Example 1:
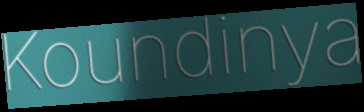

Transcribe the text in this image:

Koundinya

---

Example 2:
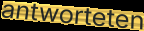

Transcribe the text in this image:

antworteten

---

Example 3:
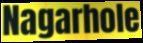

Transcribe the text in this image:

Nagarhole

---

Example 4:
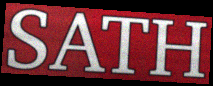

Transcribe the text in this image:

SATH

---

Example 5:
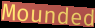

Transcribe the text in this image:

Mounded